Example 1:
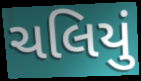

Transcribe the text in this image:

ચલિયું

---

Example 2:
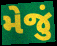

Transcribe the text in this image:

મેજું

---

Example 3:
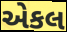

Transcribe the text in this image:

એકલ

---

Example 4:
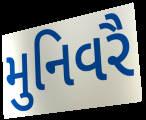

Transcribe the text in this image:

મુનિવરૈ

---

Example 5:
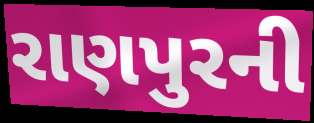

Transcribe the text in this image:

રાણપુરની